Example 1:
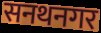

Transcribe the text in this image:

सनथनगर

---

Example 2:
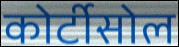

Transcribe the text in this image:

कोर्टीसोल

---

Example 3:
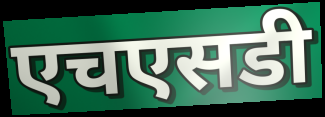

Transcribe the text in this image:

एचएसडी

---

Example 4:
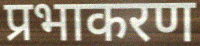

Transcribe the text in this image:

प्रभाकरण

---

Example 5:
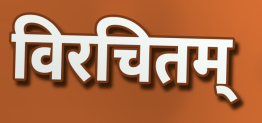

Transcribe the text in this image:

विरचितम्